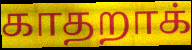
காதறாக்